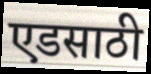
एडसाठी